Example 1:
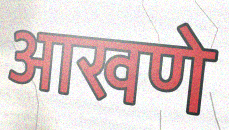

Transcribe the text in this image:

आखणे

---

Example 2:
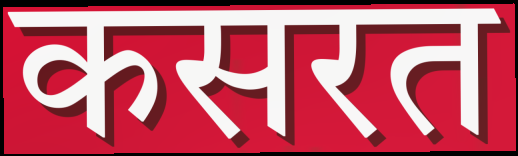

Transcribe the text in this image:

कसरत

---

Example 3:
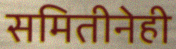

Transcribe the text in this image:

समितीनेही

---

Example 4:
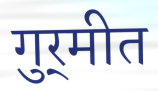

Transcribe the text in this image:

गुर्मीत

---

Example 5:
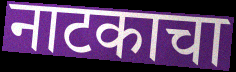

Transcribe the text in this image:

नाटकाचा